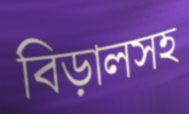
বিড়ালসহ